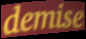
demise